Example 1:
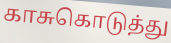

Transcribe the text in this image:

காசுகொடுத்து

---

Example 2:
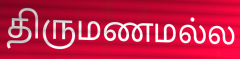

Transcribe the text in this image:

திருமணமல்ல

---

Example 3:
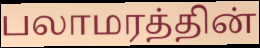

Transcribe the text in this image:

பலாமரத்தின்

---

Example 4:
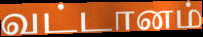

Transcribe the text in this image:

வட்டானம்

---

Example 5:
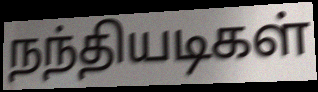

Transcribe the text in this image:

நந்தியடிகள்